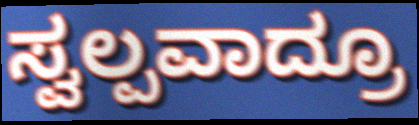
ಸ್ವಲ್ಪವಾದ್ರೂ